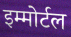
इम्मोर्टल